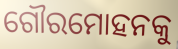
ଗୌରମୋହନକୁ